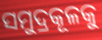
ସମୁଦ୍ରକୂଳକୁ